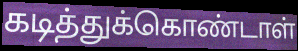
கடித்துக்கொண்டாள்